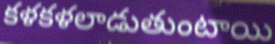
కళకళలాడుతుంటాయి